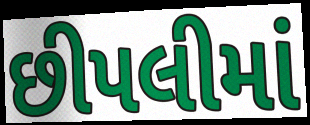
છીપલીમાં